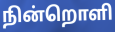
நின்றொளி